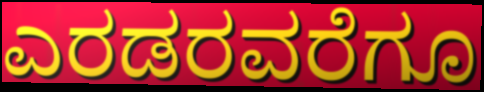
ಎರಡರವರೆಗೂ